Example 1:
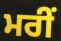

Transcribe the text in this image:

ਮਰੀਂ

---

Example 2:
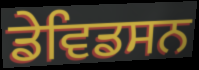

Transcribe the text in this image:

ਡੇਵਿਡਸਨ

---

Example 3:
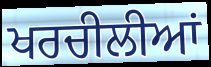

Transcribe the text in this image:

ਖਰਚੀਲੀਆਂ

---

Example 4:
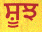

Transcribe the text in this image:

ਸ਼ੂਝ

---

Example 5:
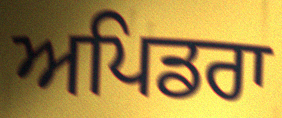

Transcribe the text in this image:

ਅਪਿਡਰਾ